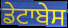
ਡੇਟਾਬੇਸ